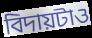
বিদায়টাও